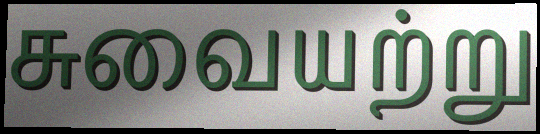
சுவையற்று